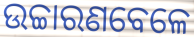
ଉଚ୍ଚାରଣବେଳେ